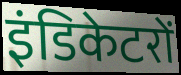
इंडिकेटरों